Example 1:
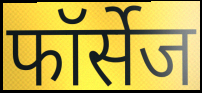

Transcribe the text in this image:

फॉर्सेज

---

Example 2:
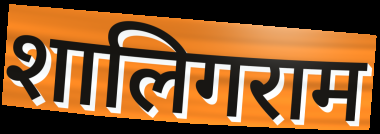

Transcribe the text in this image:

शालिगराम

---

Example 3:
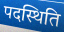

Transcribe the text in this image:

पदस्थिति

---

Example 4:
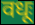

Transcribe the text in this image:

वधूः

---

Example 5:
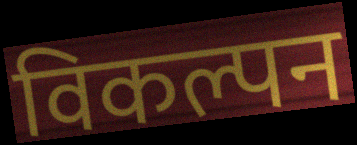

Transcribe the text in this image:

विकल्पन